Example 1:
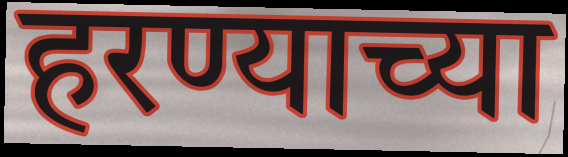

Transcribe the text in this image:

हरण्याच्या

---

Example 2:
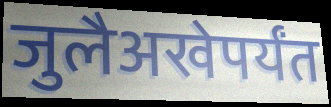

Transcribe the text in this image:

जुलैअखेपर्यंत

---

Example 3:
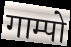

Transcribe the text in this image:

गाम्पो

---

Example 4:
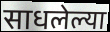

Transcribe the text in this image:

साधलेल्या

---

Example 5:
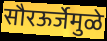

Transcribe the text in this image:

सौरऊर्जेमुळे